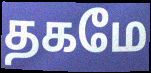
தகமே